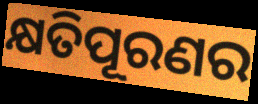
କ୍ଷତିପୂରଣର